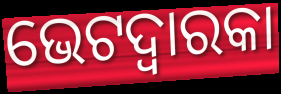
ଭେଟଦ୍ୱାରକା